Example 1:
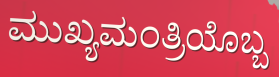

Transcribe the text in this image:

ಮುಖ್ಯಮಂತ್ರಿಯೊಬ್ಬ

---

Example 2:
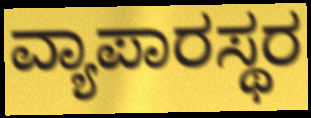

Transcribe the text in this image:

ವ್ಯಾಪಾರಸ್ಥರ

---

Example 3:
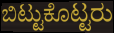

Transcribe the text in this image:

ಬಿಟ್ಟುಕೊಟ್ಟರು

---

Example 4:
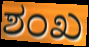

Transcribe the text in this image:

ಶಂಖ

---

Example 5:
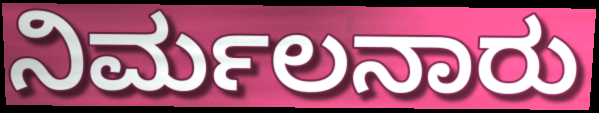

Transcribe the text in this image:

ನಿರ್ಮಲನಾರು